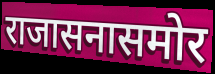
राजासनासमोर